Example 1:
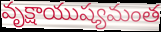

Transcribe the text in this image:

వృక్షాయుష్యమంత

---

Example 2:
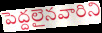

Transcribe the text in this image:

పెద్దలైనవారిని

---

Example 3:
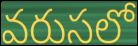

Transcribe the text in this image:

వరుసలో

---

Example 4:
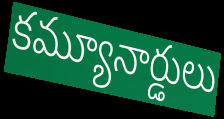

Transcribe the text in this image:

కమ్యూనార్డులు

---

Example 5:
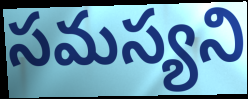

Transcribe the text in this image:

సమస్యని